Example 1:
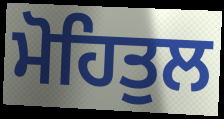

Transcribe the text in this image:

ਮੋਹਿਤੁਲ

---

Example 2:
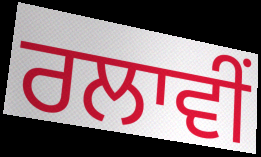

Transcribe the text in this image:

ਰਲਾਵੀਂ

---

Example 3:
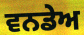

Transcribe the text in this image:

ਵਨਡੇਅ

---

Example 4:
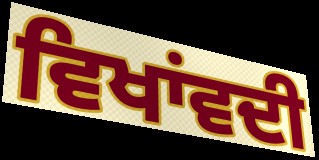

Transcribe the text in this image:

ਵਿਖਾਂਵਦੀ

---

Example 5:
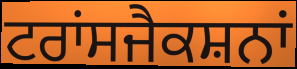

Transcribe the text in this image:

ਟਰਾਂਸਜੈਕਸ਼ਨਾਂ